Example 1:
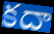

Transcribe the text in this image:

కదా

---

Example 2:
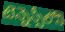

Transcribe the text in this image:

టెన్నెస్సీలోని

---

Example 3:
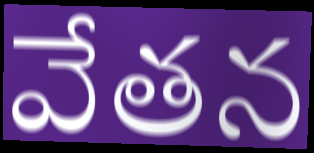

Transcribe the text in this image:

వేతన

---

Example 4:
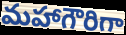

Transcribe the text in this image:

మహాగౌరిగా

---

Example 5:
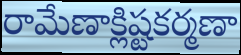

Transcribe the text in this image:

రామేణాక్లిష్టకర్మణా